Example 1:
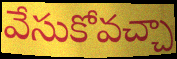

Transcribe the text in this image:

వేసుకోవచ్చా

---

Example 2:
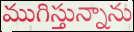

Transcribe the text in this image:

ముగిస్తున్నాను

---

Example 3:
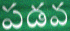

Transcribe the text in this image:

పడవ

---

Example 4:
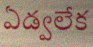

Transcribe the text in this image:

ఏడ్వలేక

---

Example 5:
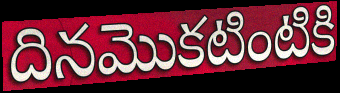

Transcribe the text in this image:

దినమొకటింటికి